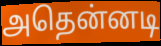
அதென்னடி